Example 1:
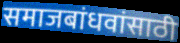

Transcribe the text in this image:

समाजबांधवांसाठी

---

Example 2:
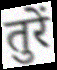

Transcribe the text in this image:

तुरें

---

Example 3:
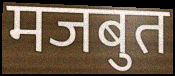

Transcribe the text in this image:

मजबुत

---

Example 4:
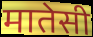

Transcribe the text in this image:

मातेसी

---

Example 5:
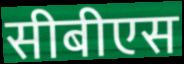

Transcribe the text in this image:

सीबीएस